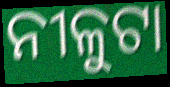
ନୀଳୁଟା